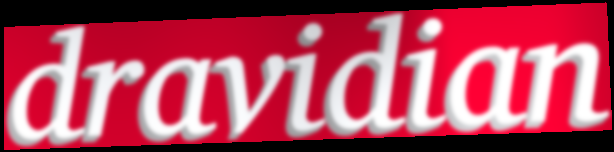
dravidian